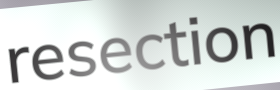
resection